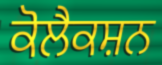
ਕੋਲੈਕਸ਼ਨ